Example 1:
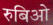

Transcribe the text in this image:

रुबिओ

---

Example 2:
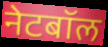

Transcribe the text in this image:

नेटबॉल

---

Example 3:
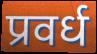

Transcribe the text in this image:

प्रवर्ध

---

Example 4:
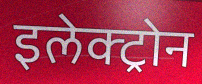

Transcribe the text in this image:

इलेक्ट्रोन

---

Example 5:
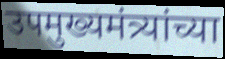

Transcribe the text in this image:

उपमुख्यमंत्र्यांच्या